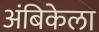
अंबिकेला